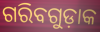
ଗରିବଗୁଡ଼ାକ